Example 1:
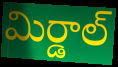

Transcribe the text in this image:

మిర్డాల్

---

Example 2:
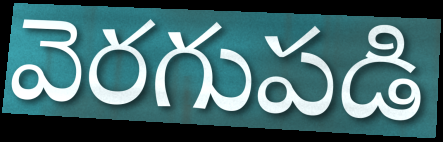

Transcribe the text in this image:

వెరగుపడి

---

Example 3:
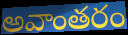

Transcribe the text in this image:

అవాంతరం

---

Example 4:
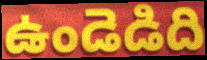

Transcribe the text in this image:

ఉండెడిది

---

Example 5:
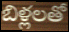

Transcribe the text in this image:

బిళ్లలతో